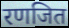
रणजित